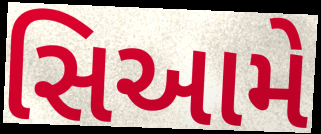
સિઆમે